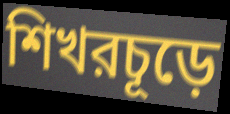
শিখরচূড়ে